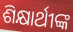
ଶିକ୍ଷାର୍ଥୀଙ୍କ